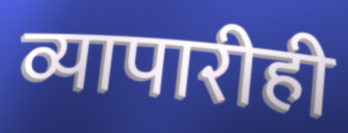
व्यापारीही